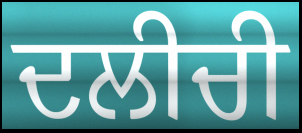
ਦਲੀਚੀ